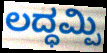
ಲದ್ಧಮ್ಪಿ